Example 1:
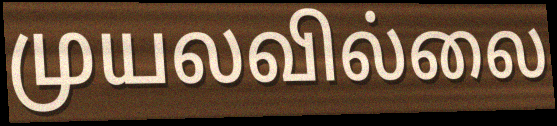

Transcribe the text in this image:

முயலவில்லை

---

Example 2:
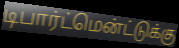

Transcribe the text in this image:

டிபார்ட்மென்ட்டுக்கு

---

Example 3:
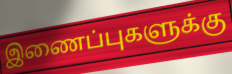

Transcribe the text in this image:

இணைப்புகளுக்கு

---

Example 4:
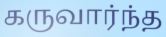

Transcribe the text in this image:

கருவார்ந்த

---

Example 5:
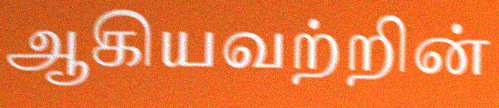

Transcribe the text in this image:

ஆகியவற்றின்